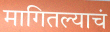
मागितल्याचं